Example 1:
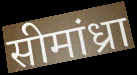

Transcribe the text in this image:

सीमांध्रा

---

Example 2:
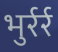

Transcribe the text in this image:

भुर्रर्र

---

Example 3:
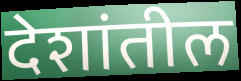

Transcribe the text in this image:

देशांतील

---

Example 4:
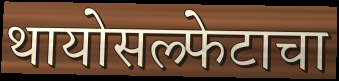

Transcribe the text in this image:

थायोसल्फेटाचा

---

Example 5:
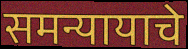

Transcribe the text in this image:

समन्यायाचे